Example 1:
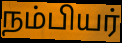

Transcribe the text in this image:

நம்பியர்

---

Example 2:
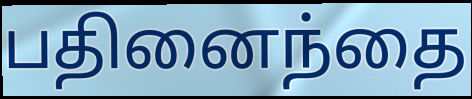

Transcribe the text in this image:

பதினைந்தை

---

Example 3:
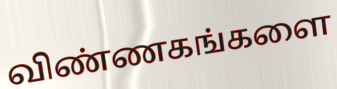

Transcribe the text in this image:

விண்ணகங்களை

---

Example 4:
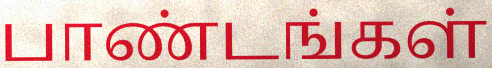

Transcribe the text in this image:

பாண்டங்கள்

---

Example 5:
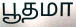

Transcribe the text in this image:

பூதமா